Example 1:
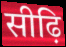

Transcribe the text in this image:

सीढ़ि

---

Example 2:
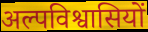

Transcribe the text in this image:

अल्पविश्वासियों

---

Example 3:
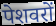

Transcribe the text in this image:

पेशवरों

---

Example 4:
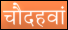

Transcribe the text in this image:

चौदहवां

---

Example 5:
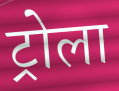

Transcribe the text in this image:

ट्रोला